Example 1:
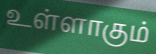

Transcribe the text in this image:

உள்ளாகும்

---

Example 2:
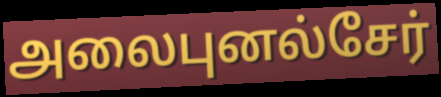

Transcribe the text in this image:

அலைபுனல்சேர்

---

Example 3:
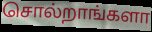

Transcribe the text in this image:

சொல்றாங்களா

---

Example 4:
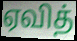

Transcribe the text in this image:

ஏவித்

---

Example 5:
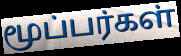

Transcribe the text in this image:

மூப்பர்கள்